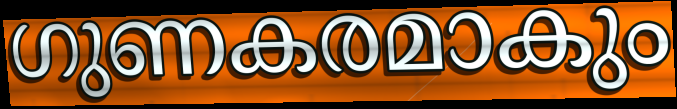
ഗുണകരമാകും